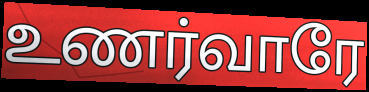
உணர்வாரே